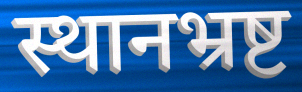
स्थानभ्रष्ट